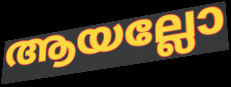
ആയല്ലോ